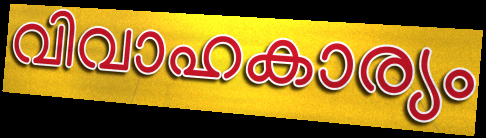
വിവാഹകാര്യം